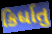
કિર્ધાતુ